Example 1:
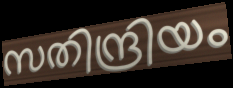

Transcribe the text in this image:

സതിന്ദ്രിയം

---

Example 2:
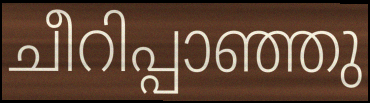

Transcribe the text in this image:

ചീറിപ്പാഞ്ഞു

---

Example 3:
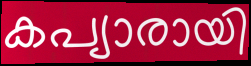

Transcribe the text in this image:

കപ്യാരായി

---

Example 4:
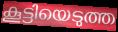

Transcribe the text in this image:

കൂട്ടിയെടുത്ത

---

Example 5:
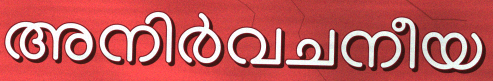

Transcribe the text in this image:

അനിർവചനീയ